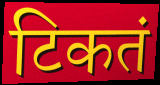
टिकतं